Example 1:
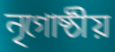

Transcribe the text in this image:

নৃগোষ্ঠীয়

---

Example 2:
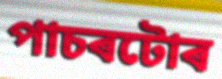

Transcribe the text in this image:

পাচৰটোৰ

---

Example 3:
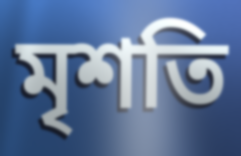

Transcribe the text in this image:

মৃশতি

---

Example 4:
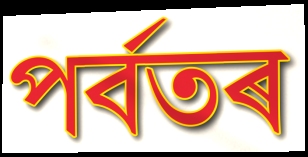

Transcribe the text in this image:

পৰ্বতৰ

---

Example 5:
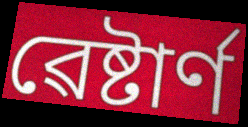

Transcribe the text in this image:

ৱেষ্টাৰ্ণ